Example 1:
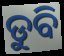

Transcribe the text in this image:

ଡୁବି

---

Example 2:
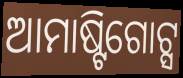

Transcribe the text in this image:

ଆମାଷ୍ଟିଗୋଟ୍ସ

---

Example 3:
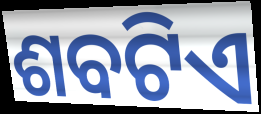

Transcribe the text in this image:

ଶବଟିଏ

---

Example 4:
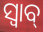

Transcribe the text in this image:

ସ୍ବାବ୍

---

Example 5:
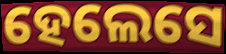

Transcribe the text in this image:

ହେଲେସେ